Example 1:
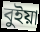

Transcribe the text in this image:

বুইয়া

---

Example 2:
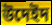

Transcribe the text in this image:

উদেইদ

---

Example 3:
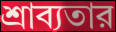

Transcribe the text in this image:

শ্রাব্যতার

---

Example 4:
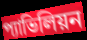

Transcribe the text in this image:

প্যাভিলিয়ন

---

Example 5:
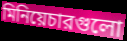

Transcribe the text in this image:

মিনিয়েচারগুলো